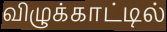
விழுக்காட்டில்